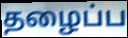
தழைப்ப